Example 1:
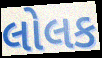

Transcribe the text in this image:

લોલક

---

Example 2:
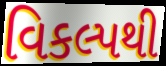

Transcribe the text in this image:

વિકલ્પથી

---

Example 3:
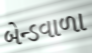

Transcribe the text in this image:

બેન્ડવાળા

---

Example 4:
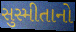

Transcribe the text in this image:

સુસ્મીતાનો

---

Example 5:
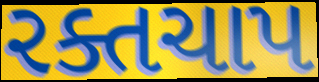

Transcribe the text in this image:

રક્તચાપ